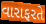
વારાફરતે